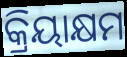
କ୍ରିୟାକ୍ଷମ